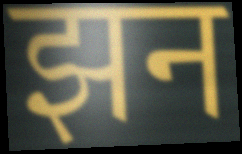
झन